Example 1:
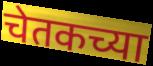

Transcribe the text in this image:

चेतकच्या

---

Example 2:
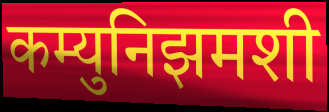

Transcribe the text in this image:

कम्युनिझमशी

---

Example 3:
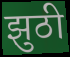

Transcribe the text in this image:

झुठी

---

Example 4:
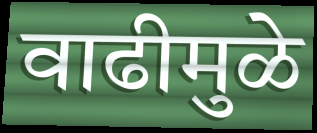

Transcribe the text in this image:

वाढीमुळे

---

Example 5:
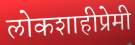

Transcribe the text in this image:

लोकशाहीप्रेमी